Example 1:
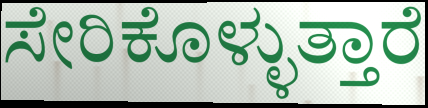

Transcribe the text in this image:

ಸೇರಿಕೊಳ್ಳುತ್ತಾರೆ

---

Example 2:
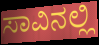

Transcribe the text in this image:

ಸಾವಿನಲ್ಲಿ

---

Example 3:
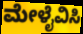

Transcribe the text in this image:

ಮೇಳೈವಿಸಿ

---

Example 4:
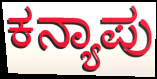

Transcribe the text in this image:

ಕನ್ಯಾಪು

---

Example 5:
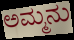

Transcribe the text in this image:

ಅಮ್ಮನು